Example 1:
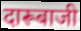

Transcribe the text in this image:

दारूबाजी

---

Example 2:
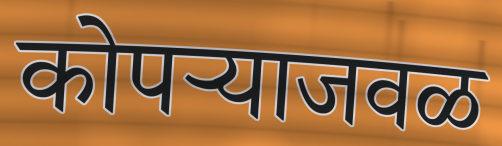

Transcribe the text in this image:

कोपऱ्याजवळ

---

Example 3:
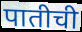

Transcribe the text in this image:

पातीची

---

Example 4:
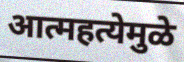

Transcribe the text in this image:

आत्महत्येमुळे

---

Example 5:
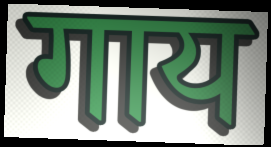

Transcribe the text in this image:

गाय